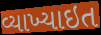
વ્યાખ્યાઇત